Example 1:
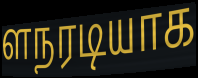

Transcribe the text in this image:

ளநரடியாக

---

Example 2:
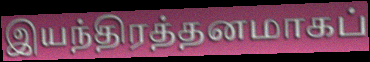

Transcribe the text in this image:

இயந்திரத்தனமாகப்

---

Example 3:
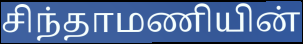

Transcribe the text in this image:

சிந்தாமணியின்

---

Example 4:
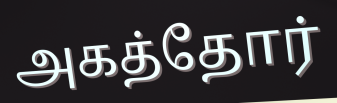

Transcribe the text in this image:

அகத்தோர்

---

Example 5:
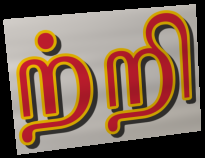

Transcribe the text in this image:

ற்றி